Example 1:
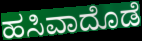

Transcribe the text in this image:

ಹಸಿವಾದೊಡೆ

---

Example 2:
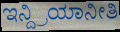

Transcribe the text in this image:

ಇನ್ದ್ರಿಯಾನೀತಿ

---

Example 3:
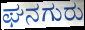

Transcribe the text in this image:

ಘನಗುರು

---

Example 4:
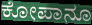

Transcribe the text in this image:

ಕೋಪಾನೂ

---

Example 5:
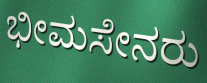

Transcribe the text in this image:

ಭೀಮಸೇನರು